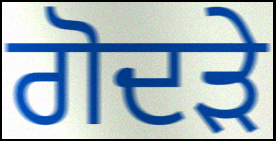
ਗੋਦੜੇ